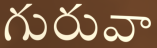
గురువా